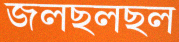
জলছলছল